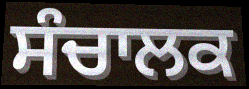
ਸੰਚਾਲਕ